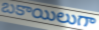
బకాయిలుగా